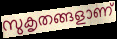
സുകൃതങ്ങളാണ്